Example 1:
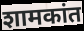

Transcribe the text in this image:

शामकांत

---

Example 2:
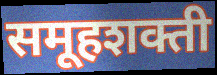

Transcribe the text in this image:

समूहशक्ती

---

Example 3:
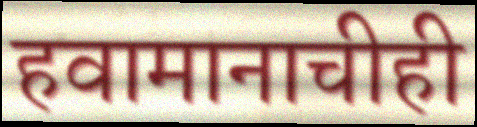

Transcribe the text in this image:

हवामानाचीही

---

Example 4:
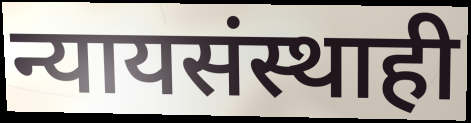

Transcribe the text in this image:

न्यायसंस्थाही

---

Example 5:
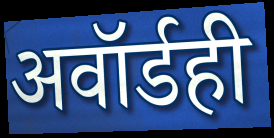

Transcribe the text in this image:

अवॉर्डही